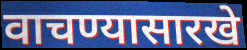
वाचण्यासारखे